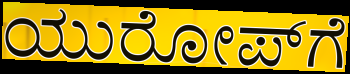
ಯುರೋಪ್‌ಗೆ